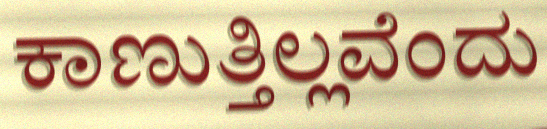
ಕಾಣುತ್ತಿಲ್ಲವೆಂದು